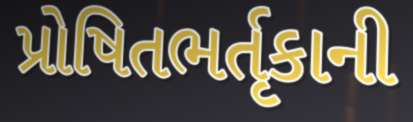
પ્રોષિતભર્તૃકાની